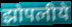
झोपलीये